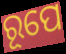
ରୂପେ